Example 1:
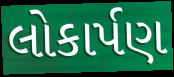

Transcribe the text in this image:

લોકાર્પણ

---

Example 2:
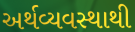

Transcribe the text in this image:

અર્થવ્યવસ્થાથી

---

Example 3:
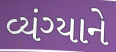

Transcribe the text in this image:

વ્યંગ્યાને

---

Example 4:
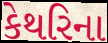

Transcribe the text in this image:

કેથરિના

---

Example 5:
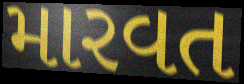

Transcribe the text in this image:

મારવત